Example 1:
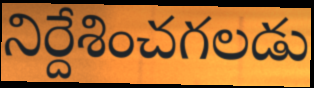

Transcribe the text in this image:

నిర్దేశించగలడు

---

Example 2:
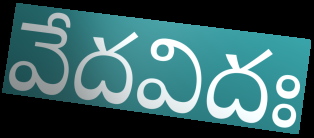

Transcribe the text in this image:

వేదవిదః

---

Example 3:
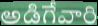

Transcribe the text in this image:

అడిగేవారి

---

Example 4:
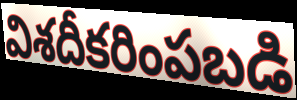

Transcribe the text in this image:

విశదీకరింపబడి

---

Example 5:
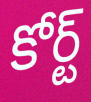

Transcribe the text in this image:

కోర్ట్